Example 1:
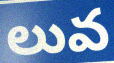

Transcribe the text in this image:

లువ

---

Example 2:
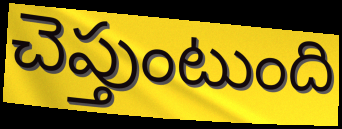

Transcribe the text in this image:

చెప్తుంటుంది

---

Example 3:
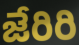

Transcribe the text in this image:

జేరిరి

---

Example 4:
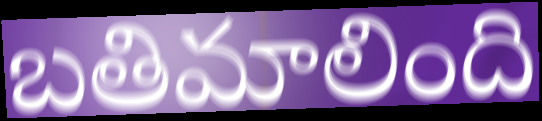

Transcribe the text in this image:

బతిమాలింది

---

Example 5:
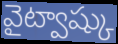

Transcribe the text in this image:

వైట్వాష్కు